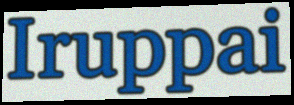
Iruppai